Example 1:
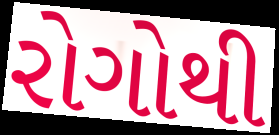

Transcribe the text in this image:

રોગોથી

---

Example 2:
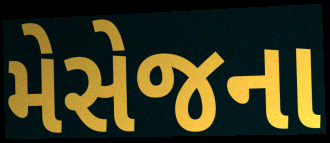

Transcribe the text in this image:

મેસેજના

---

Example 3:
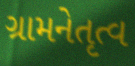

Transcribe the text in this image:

ગ્રામનેતૃત્વ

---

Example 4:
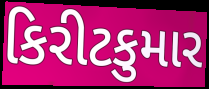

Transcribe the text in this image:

કિરીટકુમાર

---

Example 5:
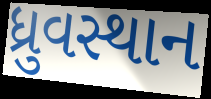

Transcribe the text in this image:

ધ્રુવસ્થાન